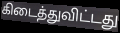
கிடைத்துவிட்டது